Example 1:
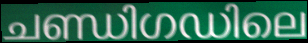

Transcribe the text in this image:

ചണ്ഡിഗഡിലെ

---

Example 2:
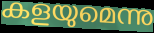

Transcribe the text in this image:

കളയുമെന്നു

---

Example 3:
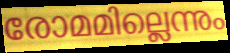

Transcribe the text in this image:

രോമമില്ലെന്നും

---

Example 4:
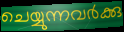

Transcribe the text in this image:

ചെയ്യുന്നവർക്കു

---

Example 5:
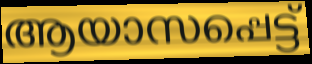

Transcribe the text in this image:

ആയാസപ്പെട്ട്